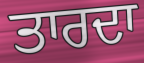
ਤਾਰਦਾ